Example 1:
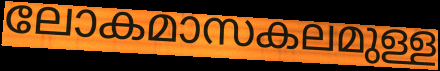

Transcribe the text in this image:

ലോകമാസകലമുള്ള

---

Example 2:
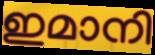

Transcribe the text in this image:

ഇമാനി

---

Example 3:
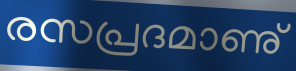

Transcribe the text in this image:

രസപ്രദമാണു്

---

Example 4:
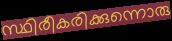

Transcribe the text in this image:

സ്ഥിരീകരിക്കുന്നൊരു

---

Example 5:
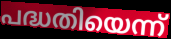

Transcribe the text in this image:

പദ്ധതിയെന്ന്